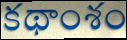
కథాంశం